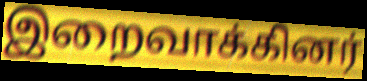
இறைவாக்கினர்